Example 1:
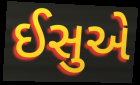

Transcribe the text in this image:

ઈસુએ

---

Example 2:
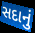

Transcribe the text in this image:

સદાનું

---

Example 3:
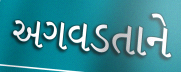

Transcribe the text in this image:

અગવડતાને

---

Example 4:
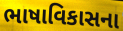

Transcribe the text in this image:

ભાષાવિકાસના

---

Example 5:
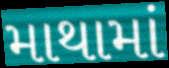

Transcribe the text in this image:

માથામાં